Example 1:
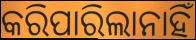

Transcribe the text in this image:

କରିପାରିଲାନାହିଁ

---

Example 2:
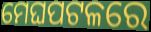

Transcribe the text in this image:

ମେଘପଟଳରେ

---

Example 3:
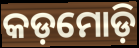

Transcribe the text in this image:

କଡ଼ମୋଡ଼ି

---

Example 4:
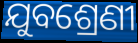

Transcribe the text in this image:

ଯୁବଶ୍ରେଣୀ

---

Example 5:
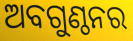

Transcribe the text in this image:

ଅବଗୁଣ୍ଠନର